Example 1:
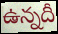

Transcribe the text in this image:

ఉన్నదీ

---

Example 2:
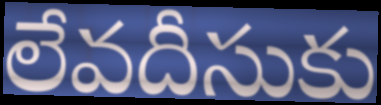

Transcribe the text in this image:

లేవదీసుకు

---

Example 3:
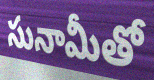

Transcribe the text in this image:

సునామీతో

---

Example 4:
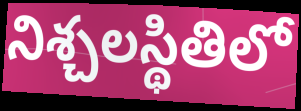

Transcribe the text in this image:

నిశ్చలస్థితిలో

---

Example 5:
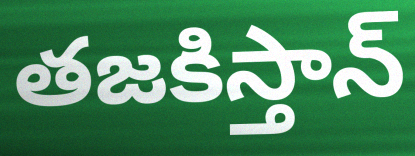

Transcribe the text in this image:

తజకిస్తాన్